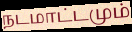
நடமாட்டமும்